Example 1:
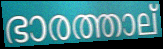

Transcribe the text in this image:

ഭാരത്താല്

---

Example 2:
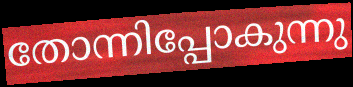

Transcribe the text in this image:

തോന്നിപ്പോകുന്നു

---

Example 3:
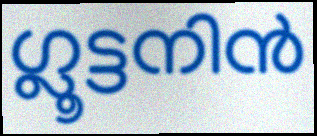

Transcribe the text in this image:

ഗ്ലൂട്ടനിൻ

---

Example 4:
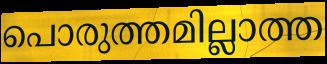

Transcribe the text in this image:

പൊരുത്തമില്ലാത്ത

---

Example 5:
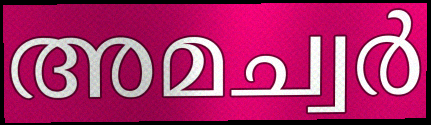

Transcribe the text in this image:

അമച്വർ